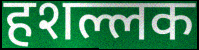
हशल्लक